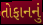
તોફાનનું